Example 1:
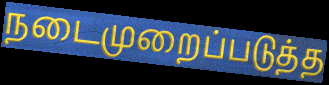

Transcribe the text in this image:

நடைமுறைப்படுத்த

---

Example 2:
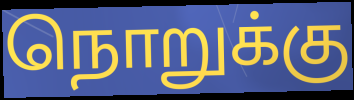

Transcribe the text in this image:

நொறுக்கு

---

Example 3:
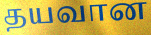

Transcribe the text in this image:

தயவான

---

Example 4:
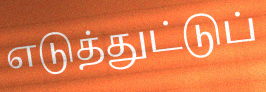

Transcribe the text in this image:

எடுத்துட்டுப்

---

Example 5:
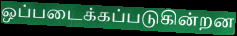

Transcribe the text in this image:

ஒப்படைக்கப்படுகின்றன